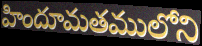
హిందూమతములోని